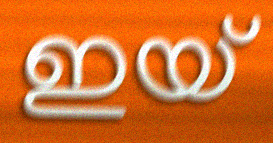
ഇയ്